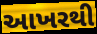
આખરથી